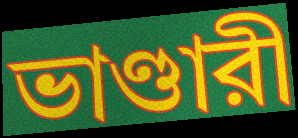
ভাণ্ডারী